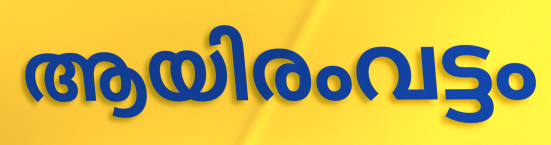
ആയിരംവട്ടം